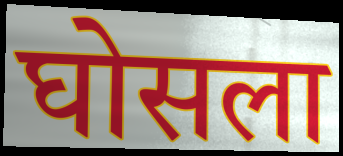
घोसला